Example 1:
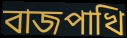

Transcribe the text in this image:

বাজপাখি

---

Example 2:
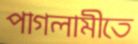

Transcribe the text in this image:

পাগলামীতে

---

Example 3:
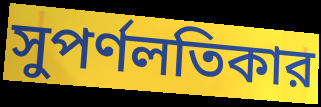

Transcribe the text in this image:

সুপর্ণলতিকার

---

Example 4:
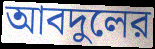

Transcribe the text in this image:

আবদুলের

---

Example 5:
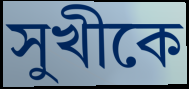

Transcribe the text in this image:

সুখীকে